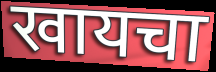
खायचा